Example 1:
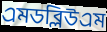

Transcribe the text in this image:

এমডব্লিউএম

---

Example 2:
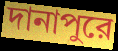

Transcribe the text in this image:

দানাপুরে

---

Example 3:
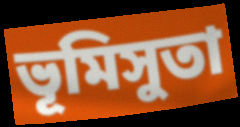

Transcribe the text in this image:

ভূমিসুতা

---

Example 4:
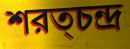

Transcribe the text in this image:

শরত্চন্দ্র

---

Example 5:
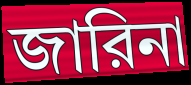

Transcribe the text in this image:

জারিনা